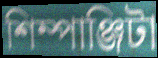
শিম্পাঞ্জিটা